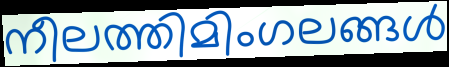
നീലത്തിമിംഗലങ്ങൾ